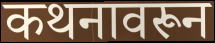
कथनावरून